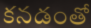
కనడంతో